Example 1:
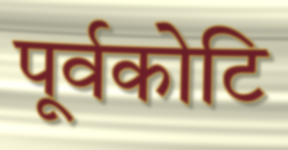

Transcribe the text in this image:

पूर्वकोटि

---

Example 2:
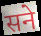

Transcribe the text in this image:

सने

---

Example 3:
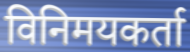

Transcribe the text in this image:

विनिमयकर्ता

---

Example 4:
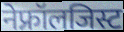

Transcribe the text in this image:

नेफ्रॉलजिस्ट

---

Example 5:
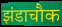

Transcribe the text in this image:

झंडाचौक